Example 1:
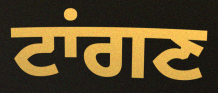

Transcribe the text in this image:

ਟਾਂਗਣ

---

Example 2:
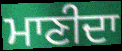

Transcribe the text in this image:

ਮਾਣੀਦਾ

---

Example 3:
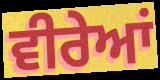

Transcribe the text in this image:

ਵੀਰੇਆਂ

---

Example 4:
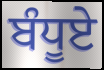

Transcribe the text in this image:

ਬੰਧੂਏ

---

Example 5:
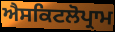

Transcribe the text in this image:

ਐਸਕਿਟਲੋਪ੍ਰਾਮ